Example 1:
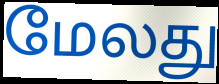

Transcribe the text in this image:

மேலது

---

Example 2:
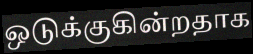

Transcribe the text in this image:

ஒடுக்குகின்றதாக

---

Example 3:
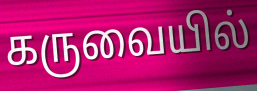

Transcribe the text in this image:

கருவையில்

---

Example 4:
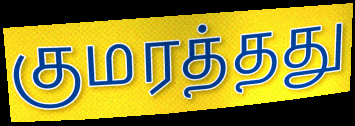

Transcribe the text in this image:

குமரத்தது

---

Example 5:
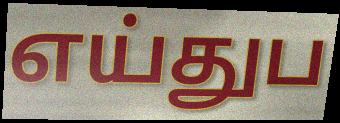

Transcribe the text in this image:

எய்துப